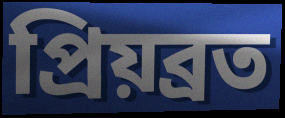
প্ৰিয়ব্ৰত